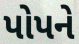
પોપને